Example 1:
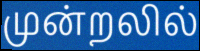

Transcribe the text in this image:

முன்றலில்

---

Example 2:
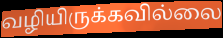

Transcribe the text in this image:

வழியிருக்கவில்லை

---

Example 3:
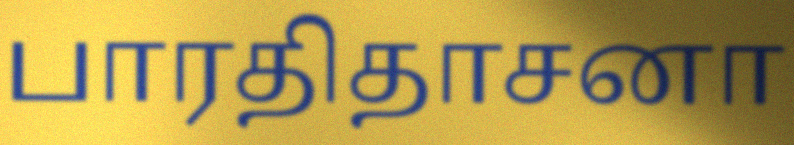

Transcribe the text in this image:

பாரதிதாசனா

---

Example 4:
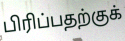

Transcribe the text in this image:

பிரிப்பதற்குக்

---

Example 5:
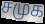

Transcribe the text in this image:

சமுக